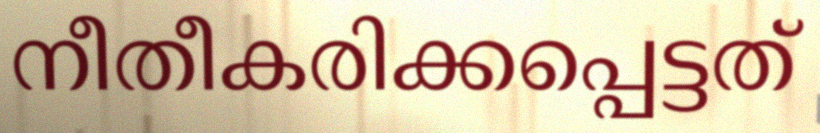
നീതീകരിക്കപ്പെട്ടത്